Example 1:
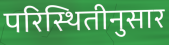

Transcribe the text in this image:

परिस्थितीनुसार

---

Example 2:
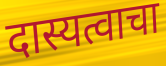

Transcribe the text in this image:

दास्यत्वाचा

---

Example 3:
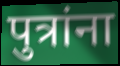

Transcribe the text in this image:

पुत्रांना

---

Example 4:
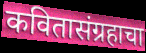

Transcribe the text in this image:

कवितासंग्रहाचा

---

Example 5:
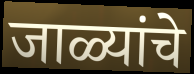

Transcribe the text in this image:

जाळ्यांचे